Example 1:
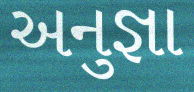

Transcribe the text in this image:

અનુજ્ઞા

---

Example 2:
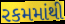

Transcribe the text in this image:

રકમમાંથી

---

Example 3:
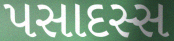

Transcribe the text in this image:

પસાદસ્સ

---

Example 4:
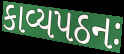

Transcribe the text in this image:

કાવ્યપઠનઃ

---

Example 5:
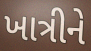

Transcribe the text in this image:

ખાત્રીને